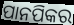
ପାନପିକର